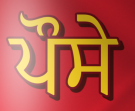
ਪੌਸੇ